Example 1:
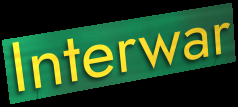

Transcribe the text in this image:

Interwar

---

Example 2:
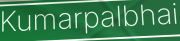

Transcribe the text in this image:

Kumarpalbhai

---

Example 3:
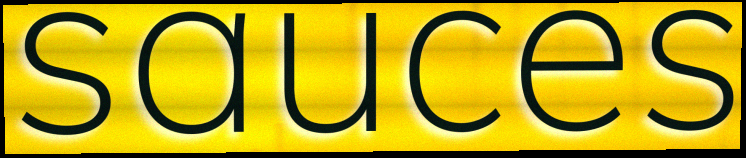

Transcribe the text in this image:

sauces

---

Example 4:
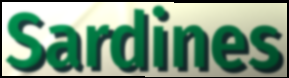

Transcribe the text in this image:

Sardines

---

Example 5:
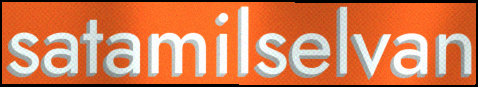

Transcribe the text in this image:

satamilselvan